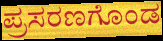
ಪ್ರಸರಣಗೊಂಡ